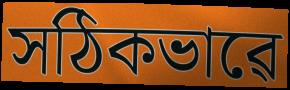
সঠিকভাৱে